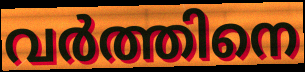
വർത്തിനെ